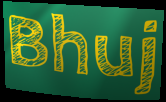
Bhuj